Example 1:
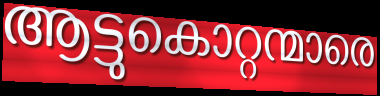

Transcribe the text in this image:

ആട്ടുകൊറ്റന്മാരെ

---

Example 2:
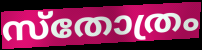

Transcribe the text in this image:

സ്തോത്രം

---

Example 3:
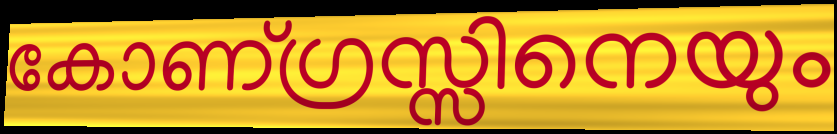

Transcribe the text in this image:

കോണ്ഗ്രസ്സിനെയും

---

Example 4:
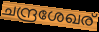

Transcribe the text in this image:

ചന്ദ്രശേഖര്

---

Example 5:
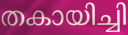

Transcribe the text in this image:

തകായിച്ചി